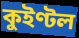
কুইণ্টল